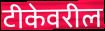
टीकेवरील